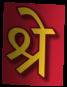
श्रे